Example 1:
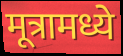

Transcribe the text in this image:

मूत्रामध्ये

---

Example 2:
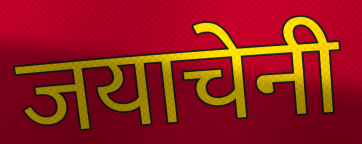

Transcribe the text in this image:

जयाचेनी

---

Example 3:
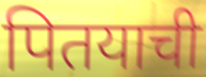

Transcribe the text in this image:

पितयाची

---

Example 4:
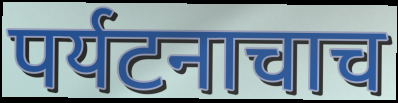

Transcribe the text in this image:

पर्यटनाचाच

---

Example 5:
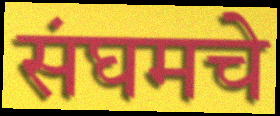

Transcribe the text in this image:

संघमचे